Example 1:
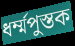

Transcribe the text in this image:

ধর্ম্মপুস্তক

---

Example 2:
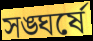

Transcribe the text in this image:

সঙ্ঘর্ষে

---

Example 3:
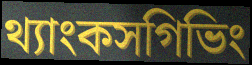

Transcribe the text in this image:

থ্যাংকসগিভিং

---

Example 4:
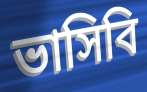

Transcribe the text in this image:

ভাসিবি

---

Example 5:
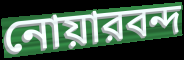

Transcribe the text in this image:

নোয়ারবন্দ